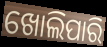
ଖୋଲିପାରି